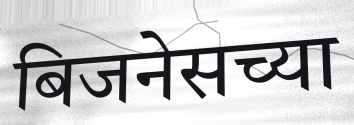
बिजनेसच्या